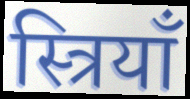
स्‍त्रियाँ